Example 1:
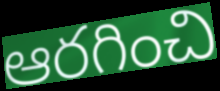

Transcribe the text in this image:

ఆరగించి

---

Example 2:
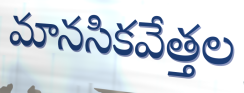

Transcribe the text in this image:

మానసికవేత్తల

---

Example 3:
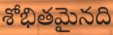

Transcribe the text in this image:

శోభితమైనది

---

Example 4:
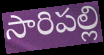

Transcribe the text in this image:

సారిపల్లి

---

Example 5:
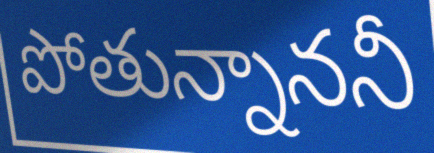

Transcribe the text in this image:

పోతున్నాననీ